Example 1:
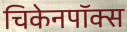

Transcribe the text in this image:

चिकेनपॉक्स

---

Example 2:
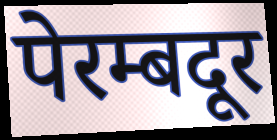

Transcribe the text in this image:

पेरम्बदूर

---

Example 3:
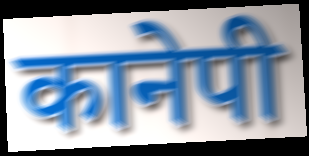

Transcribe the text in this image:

कानेपी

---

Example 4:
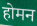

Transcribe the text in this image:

होमन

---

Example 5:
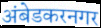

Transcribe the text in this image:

अंबेडकरनगर